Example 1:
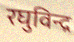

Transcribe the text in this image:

रघुविन्द्र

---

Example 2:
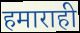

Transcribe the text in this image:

हमाराही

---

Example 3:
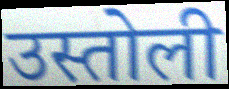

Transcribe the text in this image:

उस्तोली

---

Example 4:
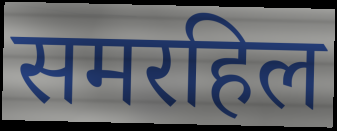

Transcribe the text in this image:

समरहिल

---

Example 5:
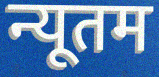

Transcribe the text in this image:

न्यूतम